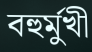
বহুর্মুখী